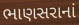
ભાણસરાનાં